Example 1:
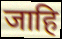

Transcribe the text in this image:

जाहि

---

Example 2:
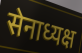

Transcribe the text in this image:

सेनाध्यक्ष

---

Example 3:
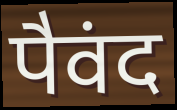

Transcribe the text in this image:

पैवंद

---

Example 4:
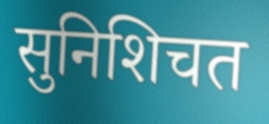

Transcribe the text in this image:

सुनिशिचत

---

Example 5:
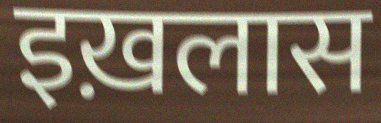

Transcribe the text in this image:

इख़लास